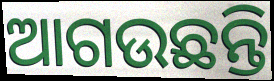
ଆଗଉଛନ୍ତି